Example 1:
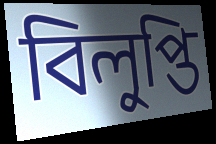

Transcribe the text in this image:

বিলুপ্তি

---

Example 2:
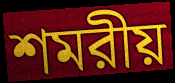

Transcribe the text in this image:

শমরীয়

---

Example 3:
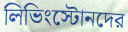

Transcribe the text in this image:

লিভিংস্টোনদের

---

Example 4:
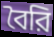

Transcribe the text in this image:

বৈরি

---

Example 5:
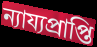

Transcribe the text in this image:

ন্যায্যপ্রাপ্তি